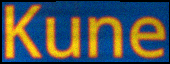
Kune